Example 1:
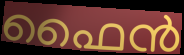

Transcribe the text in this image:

ഫൈൻ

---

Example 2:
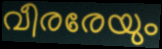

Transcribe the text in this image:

വീരരേയും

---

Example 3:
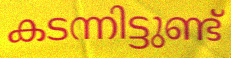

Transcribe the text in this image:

കടന്നിട്ടുണ്ട്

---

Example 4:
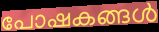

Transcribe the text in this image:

പോഷകങ്ങൾ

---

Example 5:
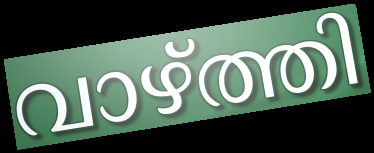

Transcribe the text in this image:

വാഴ്ത്തി